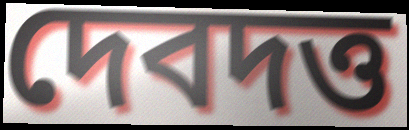
দেবদত্ত